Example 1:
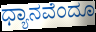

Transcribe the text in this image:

ಧ್ಯಾನವೆಂದೂ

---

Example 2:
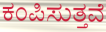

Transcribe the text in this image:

ಕಂಪಿಸುತ್ತವೆ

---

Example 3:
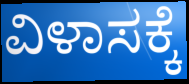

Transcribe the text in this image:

ವಿಳಾಸಕ್ಕೆ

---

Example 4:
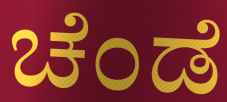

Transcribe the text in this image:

ಚೆಂಡೆ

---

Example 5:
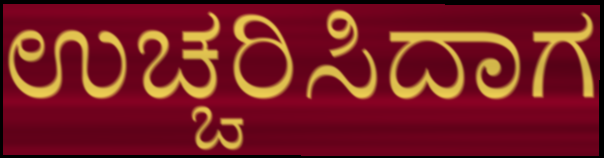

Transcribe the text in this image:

ಉಚ್ಚರಿಸಿದಾಗ